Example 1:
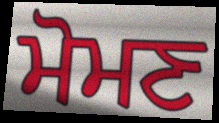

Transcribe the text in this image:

ਮੋਮਣ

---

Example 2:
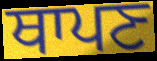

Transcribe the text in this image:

ਥਾਪਣ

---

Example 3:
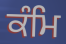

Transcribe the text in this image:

ਕੰਮਿ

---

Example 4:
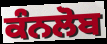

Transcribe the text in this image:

ਕੰਨਲੋਬ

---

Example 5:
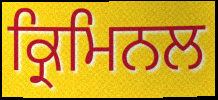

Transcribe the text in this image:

ਕ੍ਰਿਮਿਨਲ